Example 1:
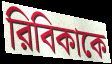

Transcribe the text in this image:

রিবিকাকে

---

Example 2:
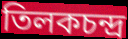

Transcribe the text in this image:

তিলকচন্দ্র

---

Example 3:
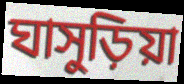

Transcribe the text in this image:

ঘাসুড়িয়া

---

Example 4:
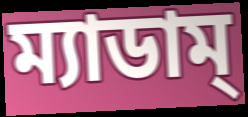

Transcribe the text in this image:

ম্যাডাম্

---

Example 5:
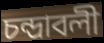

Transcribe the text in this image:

চন্দ্রাবলী